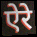
ऐरे